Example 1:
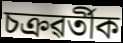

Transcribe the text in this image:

চক্ৰৱৰ্তীক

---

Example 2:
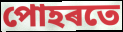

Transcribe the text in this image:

পোহৰতে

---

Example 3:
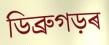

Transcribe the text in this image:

ডিব্ৰুগড়ৰ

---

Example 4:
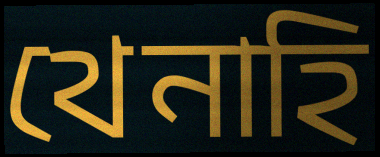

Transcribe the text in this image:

থেনাহি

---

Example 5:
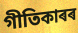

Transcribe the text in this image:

গীতিকাৰৰ